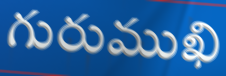
గురుముఖి